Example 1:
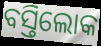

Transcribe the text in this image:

ବସ୍ତିଲୋକ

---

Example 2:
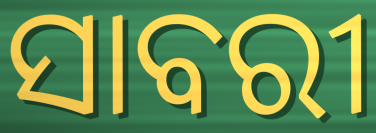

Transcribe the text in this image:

ସାବରୀ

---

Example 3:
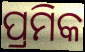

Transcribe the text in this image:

ପ୍ରମିକ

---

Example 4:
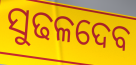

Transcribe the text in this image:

ସୁଢଳଦେବ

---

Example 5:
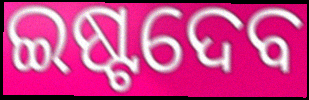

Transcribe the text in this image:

ଇଷ୍ଟଦେବ